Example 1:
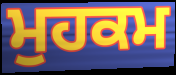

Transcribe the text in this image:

ਮੁਹਕਮ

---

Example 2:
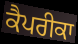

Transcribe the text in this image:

ਕੈਪਰੀਕਾ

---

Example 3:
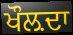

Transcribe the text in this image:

ਖੌਲ਼ਦਾ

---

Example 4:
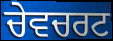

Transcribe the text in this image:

ਚੇਵਚਰਟ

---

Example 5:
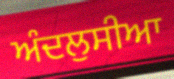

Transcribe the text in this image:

ਅੰਦਲੁਸੀਆ